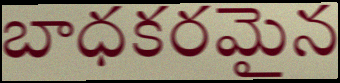
బాధకరమైన